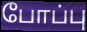
போப்பு